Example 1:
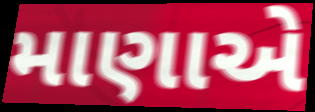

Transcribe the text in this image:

માણાએ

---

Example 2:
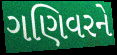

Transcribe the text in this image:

ગણિવરને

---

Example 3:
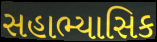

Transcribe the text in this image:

સહાભ્યાસિક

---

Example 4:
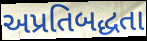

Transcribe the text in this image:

અપ્રતિબદ્ધતા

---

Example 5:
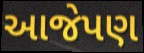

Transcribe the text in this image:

આજેપણ